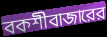
বকশীবাজারের